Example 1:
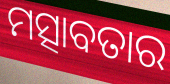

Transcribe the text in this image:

ମତ୍ସାବତାର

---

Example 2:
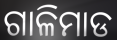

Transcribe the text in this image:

ଗାଳିମାଡ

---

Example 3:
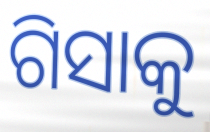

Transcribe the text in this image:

ଗିସାକୁ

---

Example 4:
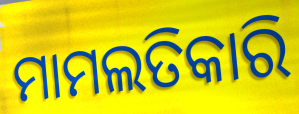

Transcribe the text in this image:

ମାମଲତିକାରି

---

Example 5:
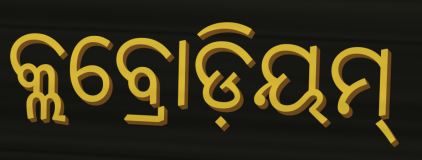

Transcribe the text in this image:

କ୍ଲବ୍ରୋଡ଼ିୟମ୍